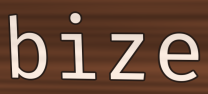
bize